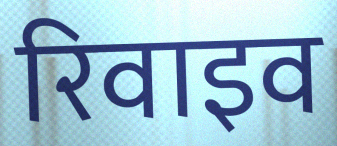
रिवाइव